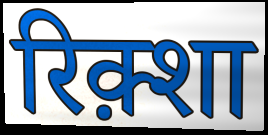
रिक़्शा